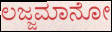
ಲಜ್ಜಮಾನೋ